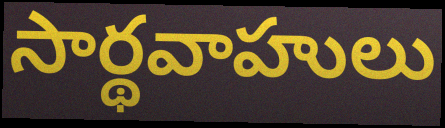
సార్థవాహులు